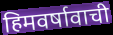
हिमवर्षावाची